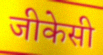
जीकेसी